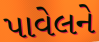
પાવેલને